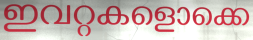
ഇവറ്റകളൊക്കെ